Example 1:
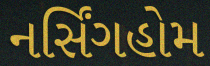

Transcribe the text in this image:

નર્સિંગહોમ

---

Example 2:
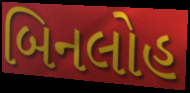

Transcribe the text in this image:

બિનલોહ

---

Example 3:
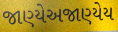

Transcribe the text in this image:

જાણ્યેઅજાણ્યેય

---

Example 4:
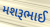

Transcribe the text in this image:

મશરૂભાઈ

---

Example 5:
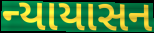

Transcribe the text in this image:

ન્યાયાસન